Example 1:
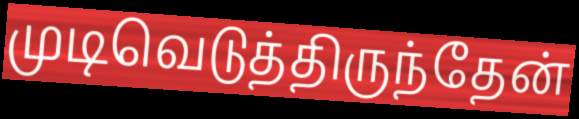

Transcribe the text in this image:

முடிவெடுத்திருந்தேன்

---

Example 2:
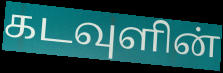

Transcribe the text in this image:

கடவுளின்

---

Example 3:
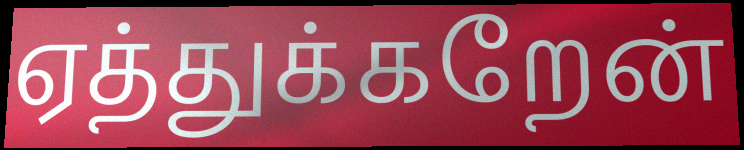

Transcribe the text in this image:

ஏத்துக்கறேன்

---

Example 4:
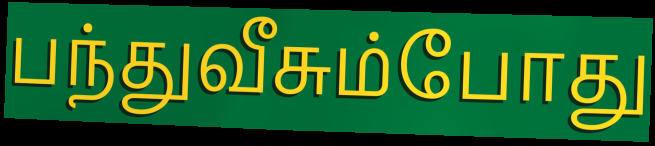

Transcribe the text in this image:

பந்துவீசும்போது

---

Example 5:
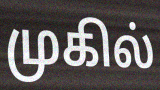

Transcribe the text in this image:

முகில்